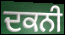
ਦਕਨੀ